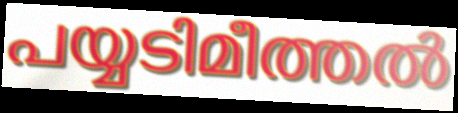
പയ്യടിമീത്തൽ